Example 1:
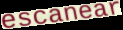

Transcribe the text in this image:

escanear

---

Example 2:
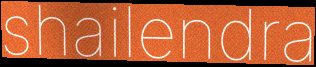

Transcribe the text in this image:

shailendra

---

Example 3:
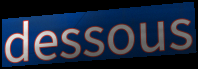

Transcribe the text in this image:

dessous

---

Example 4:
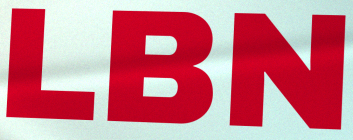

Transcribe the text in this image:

LBN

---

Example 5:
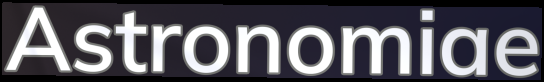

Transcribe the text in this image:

Astronomiae